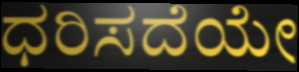
ಧರಿಸದೆಯೇ